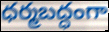
ధర్మబద్ధంగా